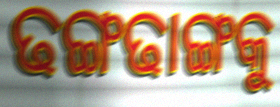
ଢଙ୍ଗଢାଙ୍ଗକୁ